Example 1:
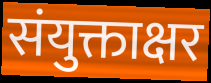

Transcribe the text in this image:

संयुक्ताक्षर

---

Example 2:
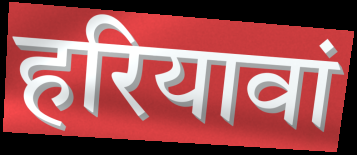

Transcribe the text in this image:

हरियावां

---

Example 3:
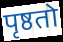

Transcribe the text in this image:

पृष्ठतो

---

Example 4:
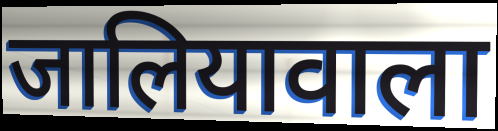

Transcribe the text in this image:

जालियावाला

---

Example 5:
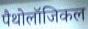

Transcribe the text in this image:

पैथोलॉजिकल